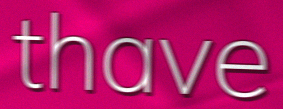
thave